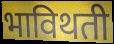
भाविथती